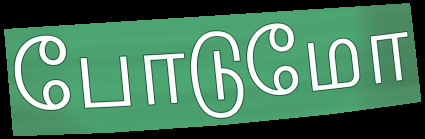
போடுமோ